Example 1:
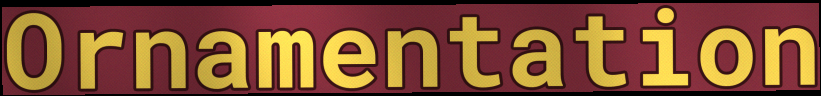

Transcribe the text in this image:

Ornamentation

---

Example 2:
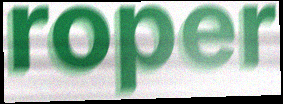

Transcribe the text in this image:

roper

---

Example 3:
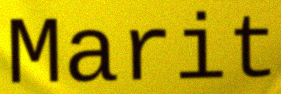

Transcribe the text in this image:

Marit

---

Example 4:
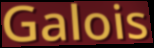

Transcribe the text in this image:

Galois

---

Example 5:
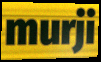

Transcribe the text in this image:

murji